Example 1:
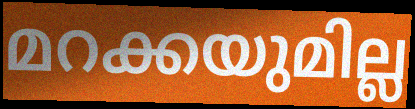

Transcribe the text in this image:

മറക്കയുമില്ല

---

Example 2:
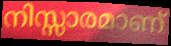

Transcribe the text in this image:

നിസ്സാരമാണ്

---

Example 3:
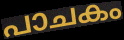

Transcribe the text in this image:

പാചകം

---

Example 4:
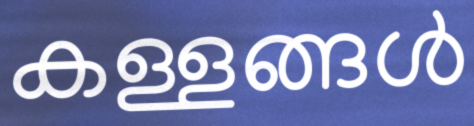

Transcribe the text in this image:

കള്ളങ്ങൾ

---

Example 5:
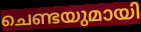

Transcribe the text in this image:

ചെണ്ടയുമായി